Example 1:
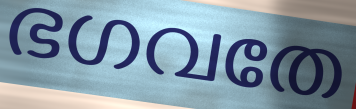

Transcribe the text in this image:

ഭഗവതേ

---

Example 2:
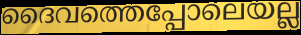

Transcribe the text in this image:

ദൈവത്തെപ്പോലെയല്ല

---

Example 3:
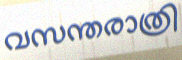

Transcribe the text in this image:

വസന്തരാത്രി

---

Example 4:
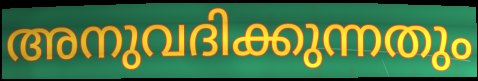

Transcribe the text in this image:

അനുവദിക്കുന്നതും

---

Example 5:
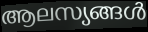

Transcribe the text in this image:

ആലസ്യങ്ങൾ